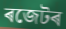
ৰজেটৰ